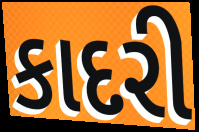
કાદરી